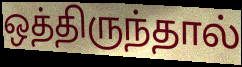
ஒத்திருந்தால்